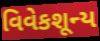
વિવેકશૂન્ય